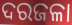
ଦରଜଳା